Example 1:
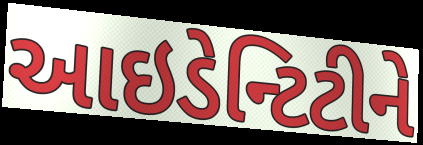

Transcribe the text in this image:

આઇડેન્ટિટીને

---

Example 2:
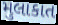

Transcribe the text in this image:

મુલાકાત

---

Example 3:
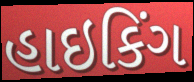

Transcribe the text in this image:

હાઇકિંગ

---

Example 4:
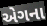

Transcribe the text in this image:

એગના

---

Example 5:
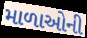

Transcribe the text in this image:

માળાઓની